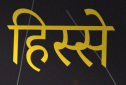
हिस्से